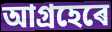
আগ্ৰহেৰে